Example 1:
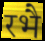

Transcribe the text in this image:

रभै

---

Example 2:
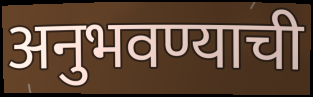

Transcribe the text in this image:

अनुभवण्याची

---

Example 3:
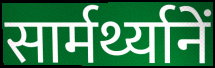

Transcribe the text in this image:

सार्मर्थ्यानें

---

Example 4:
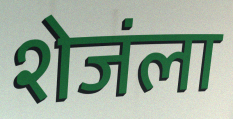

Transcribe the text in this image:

शेजंला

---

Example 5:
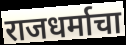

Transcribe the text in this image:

राजधर्माचा